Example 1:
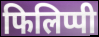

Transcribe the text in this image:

फिलिप्पी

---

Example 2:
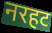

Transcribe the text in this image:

नरहट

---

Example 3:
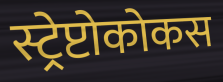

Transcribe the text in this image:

स्ट्रेप्टोकोकस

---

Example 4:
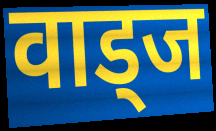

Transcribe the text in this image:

वाड्ज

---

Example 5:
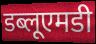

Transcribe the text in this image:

डब्लूएमडी